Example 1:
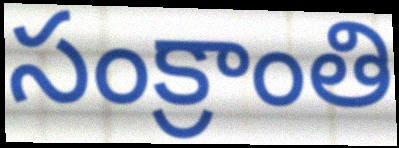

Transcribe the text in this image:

సంక్రాంతి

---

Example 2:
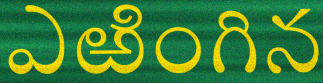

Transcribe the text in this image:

ఎఱింగిన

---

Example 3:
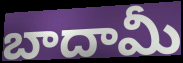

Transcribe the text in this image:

బాదామీ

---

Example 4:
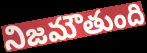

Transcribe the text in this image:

నిజమౌతుంది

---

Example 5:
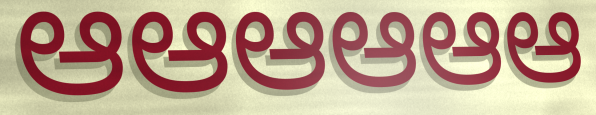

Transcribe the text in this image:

ఆఆఆఆఆఆ